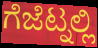
ಗೆಜೆಟ್ನಲ್ಲಿ